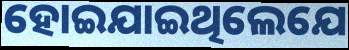
ହୋଇଯାଇଥିଲେଯେ